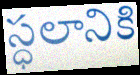
స్ధలానికి